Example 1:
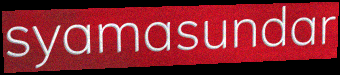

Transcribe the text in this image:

syamasundar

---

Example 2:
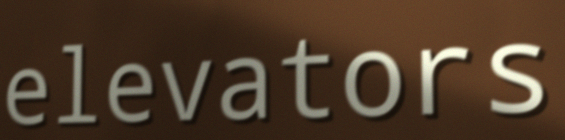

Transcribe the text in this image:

elevators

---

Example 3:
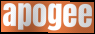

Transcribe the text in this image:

apogee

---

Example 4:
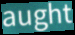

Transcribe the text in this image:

aught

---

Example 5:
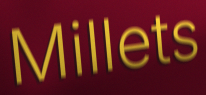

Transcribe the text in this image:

Millets